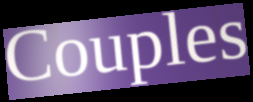
Couples